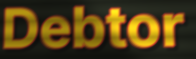
Debtor